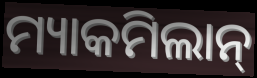
ମ୍ୟାକମିଲାନ୍